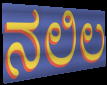
ನಲಿಲ